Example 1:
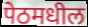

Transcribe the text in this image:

पेठमधील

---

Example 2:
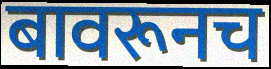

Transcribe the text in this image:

बावरूनच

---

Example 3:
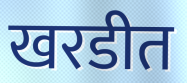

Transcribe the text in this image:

खरडीत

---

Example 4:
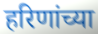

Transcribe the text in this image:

हरिणांच्या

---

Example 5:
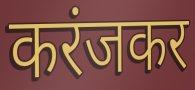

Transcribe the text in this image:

करंजकर